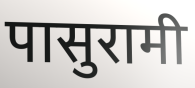
पासुरामी